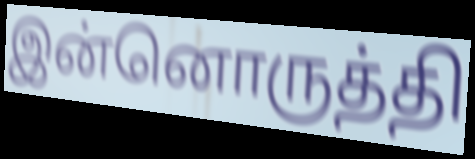
இன்னொருத்தி